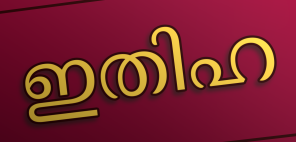
ഇതിഹ